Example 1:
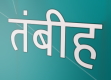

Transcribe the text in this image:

तंबीह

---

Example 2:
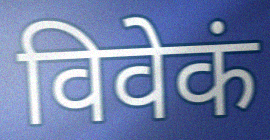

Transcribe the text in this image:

विवेकं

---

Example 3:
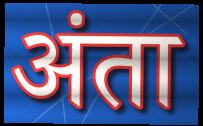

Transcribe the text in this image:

अंता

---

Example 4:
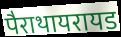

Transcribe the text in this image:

पैराथायरायड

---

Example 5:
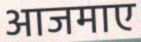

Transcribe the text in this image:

आजमाए